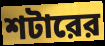
শটারের